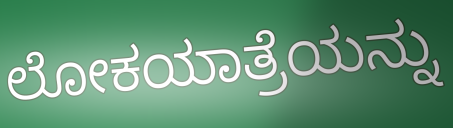
ಲೋಕಯಾತ್ರೆಯನ್ನು